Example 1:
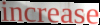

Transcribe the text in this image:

increase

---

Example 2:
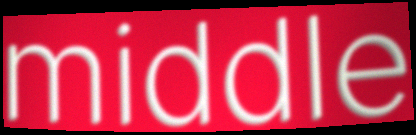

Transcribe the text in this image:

middle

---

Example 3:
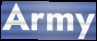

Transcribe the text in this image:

Army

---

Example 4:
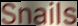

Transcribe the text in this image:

Snails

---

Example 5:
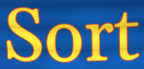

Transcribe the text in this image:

Sort